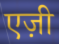
एज़ी